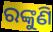
ରଙ୍କୁଣି